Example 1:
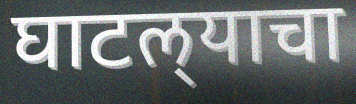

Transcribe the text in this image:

घाटल्याचा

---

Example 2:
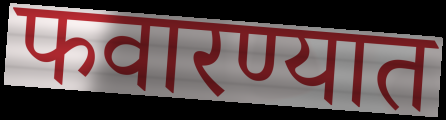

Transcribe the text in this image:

फवारण्यात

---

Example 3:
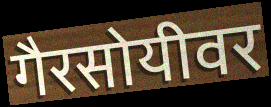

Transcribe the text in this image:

गैरसोयीवर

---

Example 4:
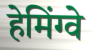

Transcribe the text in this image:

हेमिंग्वे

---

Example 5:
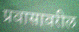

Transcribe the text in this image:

प्रवासावरील